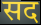
सद